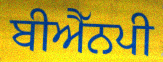
ਬੀਐੱਨਪੀ